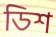
ডিশ